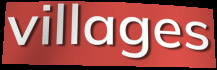
villages